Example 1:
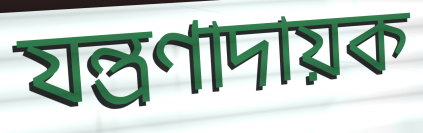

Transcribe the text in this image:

যন্ত্ৰণাদায়ক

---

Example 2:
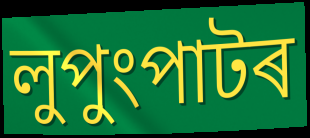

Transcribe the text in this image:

লুপুংপাটৰ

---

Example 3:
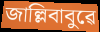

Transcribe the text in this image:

জাল্লিবাবুৱে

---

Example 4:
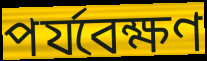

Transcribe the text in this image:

পৰ্যবেক্ষণ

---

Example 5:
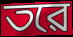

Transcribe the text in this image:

তৱে